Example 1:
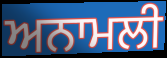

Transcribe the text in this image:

ਅਨਾਮਲੀ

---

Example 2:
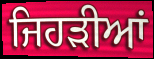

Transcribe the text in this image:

ਜਿਹੜੀਆਂ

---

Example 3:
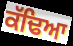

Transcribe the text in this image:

ਕੱਢਿਆ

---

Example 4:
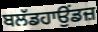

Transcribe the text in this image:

ਬਲੱਡਹਾਉਂਡਜ਼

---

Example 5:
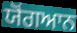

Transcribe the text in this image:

ਯੋਂਗਆਨ